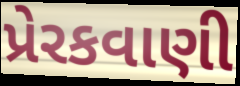
પ્રેરકવાણી